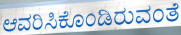
ಆವರಿಸಿಕೊಂಡಿರುವಂತೆ